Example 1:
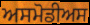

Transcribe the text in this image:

ਅਸਮੋਡੀਅਸ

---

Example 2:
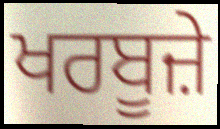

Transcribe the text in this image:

ਖਰਬੂਜ਼ੇ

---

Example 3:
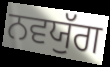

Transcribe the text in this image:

ਨਵਯੁੱਗ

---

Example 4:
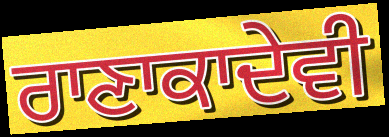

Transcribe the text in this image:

ਰਾਣਾਕਾਦੇਵੀ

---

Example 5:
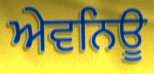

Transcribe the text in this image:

ਅੇਵਨਿਊ